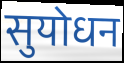
सुयोधन